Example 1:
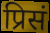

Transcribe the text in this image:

प्रिसं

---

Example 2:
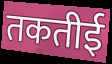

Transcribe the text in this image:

तकतीई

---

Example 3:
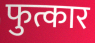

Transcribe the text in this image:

फुत्कार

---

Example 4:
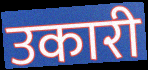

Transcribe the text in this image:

उकारी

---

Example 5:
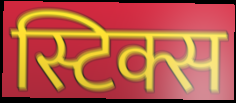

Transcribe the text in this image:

स्टिक्स